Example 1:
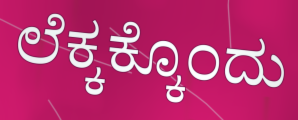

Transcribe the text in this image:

ಲೆಕ್ಕಕ್ಕೊಂದು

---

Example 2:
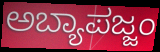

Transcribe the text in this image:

ಅಬ್ಯಾಪಜ್ಜಂ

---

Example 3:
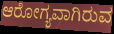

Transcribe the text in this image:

ಆರೋಗ್ಯವಾಗಿರುವ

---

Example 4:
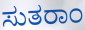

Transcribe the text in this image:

ಸುತರಾಂ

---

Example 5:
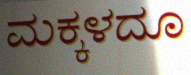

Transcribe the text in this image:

ಮಕ್ಕಳದೂ